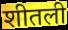
शीतली